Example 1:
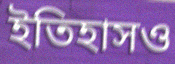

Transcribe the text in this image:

ইতিহাসও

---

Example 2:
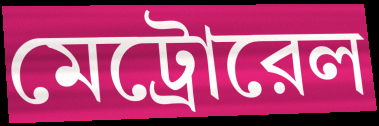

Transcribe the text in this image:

মেট্রোরেল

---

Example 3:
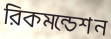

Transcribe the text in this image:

রিকমন্ডেশন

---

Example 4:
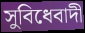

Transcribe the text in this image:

সুবিধেবাদী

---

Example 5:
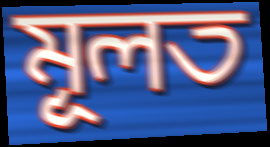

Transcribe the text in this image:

মূলত